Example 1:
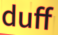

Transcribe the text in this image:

duff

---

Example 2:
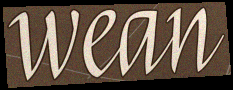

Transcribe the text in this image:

wean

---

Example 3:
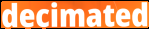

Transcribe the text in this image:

decimated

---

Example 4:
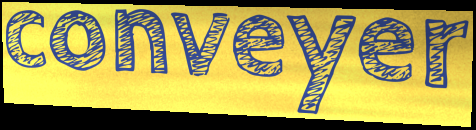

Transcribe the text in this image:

conveyer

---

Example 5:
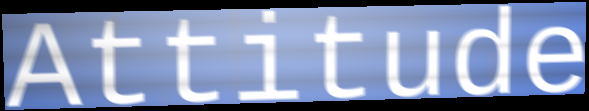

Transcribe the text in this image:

Attitude